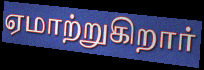
ஏமாற்றுகிறார்